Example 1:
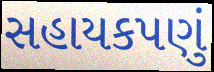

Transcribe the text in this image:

સહાયકપણું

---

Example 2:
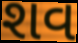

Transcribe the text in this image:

શવ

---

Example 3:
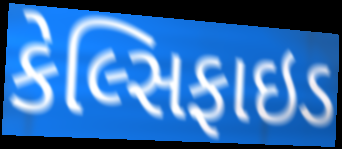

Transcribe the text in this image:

કેલ્સિફાઇડ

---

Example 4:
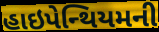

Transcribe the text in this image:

હાઇપેન્થિયમની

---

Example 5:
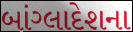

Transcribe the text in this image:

બાંગ્લાદેશના